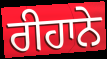
ਰੀਹਾਨੇ